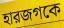
হারজগকে